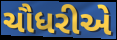
ચૌધરીએ